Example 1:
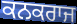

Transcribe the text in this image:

ਕਨਕਰਾਜ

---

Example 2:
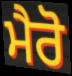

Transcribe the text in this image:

ਮੈਰੋ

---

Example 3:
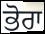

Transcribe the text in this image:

ਭੋਰਾ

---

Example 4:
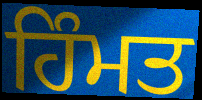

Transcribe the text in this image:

ਹਿੰਮਤ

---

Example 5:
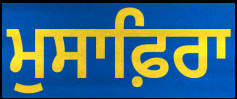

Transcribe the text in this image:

ਮੁਸਾਫ਼ਿਰਾ